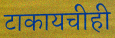
टाकायचीही